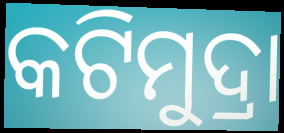
କଟିମୁଦ୍ରା